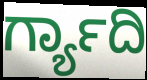
ರ್ಗ್ಯಾದಿ